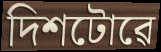
দিশটোৱে